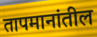
तापमानांतील